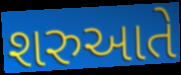
શરુઆતે